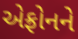
એફ્રોનને